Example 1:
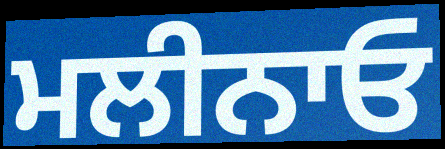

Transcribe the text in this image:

ਮਲੀਨਾਓ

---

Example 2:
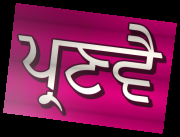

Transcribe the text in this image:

ਪ੍ਰਣਵੈ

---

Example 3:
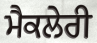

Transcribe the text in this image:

ਮੈਕਲੇਰੀ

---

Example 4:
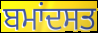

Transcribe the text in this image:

ਬਮਾਂਦਸਤ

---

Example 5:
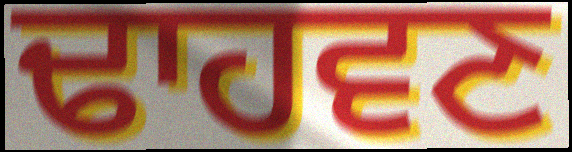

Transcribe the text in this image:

ਢਾਹਵਣ